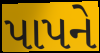
પાપને